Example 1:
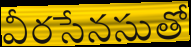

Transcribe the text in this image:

వీరసేనసుతో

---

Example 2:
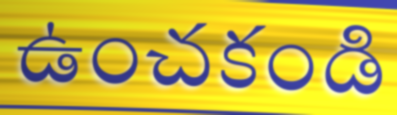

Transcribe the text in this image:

ఉంచకండి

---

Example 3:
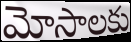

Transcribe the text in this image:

మోసాలకు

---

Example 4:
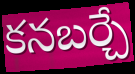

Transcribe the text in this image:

కనబర్చే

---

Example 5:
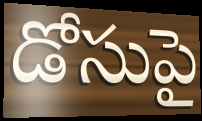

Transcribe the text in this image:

డోసుపై